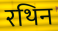
रथिन